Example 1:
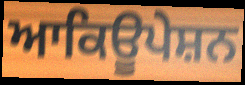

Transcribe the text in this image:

ਆਕਿਊਪੇਸ਼ਨ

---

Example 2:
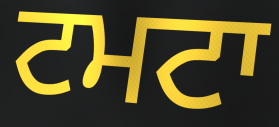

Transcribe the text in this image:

ਟਮਟਾ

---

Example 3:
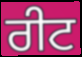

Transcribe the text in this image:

ਰੀਟ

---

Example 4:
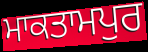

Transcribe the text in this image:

ਮਾਕਤਾਮਪੁਰ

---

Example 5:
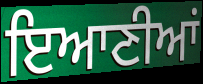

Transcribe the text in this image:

ਇਆਣੀਆਂ